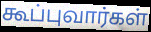
கூப்புவார்கள்